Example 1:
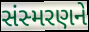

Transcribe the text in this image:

સંસ્મરણને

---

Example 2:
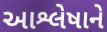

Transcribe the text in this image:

આશ્લેષાને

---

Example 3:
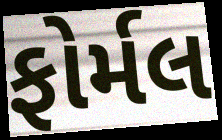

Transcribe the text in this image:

ફોર્મલ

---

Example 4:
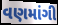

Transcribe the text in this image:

વણમાંગી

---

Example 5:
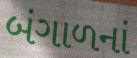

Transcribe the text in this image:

બંગાળનાં